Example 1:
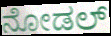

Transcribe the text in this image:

ನೋಡಲ್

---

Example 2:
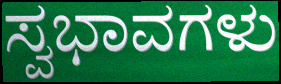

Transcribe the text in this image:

ಸ್ವಭಾವಗಳು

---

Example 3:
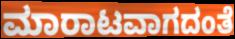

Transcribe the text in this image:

ಮಾರಾಟವಾಗದಂತೆ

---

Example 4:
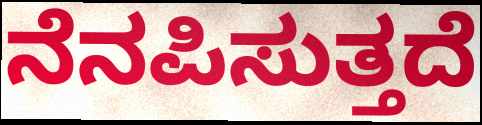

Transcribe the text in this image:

ನೆನಪಿಸುತ್ತದೆ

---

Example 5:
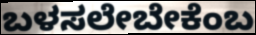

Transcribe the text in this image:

ಬಳಸಲೇಬೇಕೆಂಬ